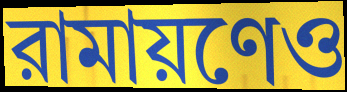
রামায়ণেও